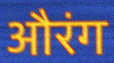
औरंग